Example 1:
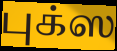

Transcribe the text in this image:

புக்ஸ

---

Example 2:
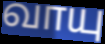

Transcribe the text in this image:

வாயு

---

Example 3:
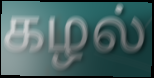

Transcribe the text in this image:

கழல்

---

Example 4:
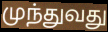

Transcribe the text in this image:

முந்துவது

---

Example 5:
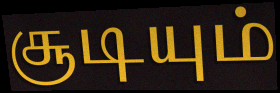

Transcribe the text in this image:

சூடியும்